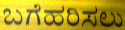
ಬಗೆಹರಿಸಲು